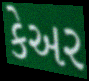
કેઅર